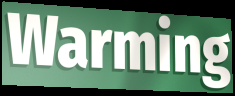
Warming